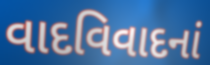
વાદવિવાદનાં